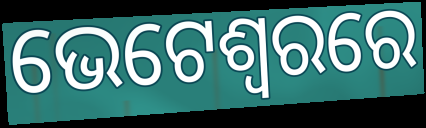
ଭେଟେଶ୍ୱରରେ